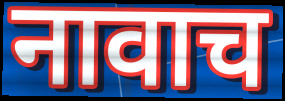
नावाच